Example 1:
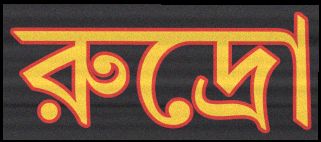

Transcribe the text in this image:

রুদ্রো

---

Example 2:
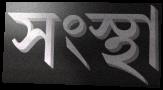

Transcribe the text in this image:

সংস্থা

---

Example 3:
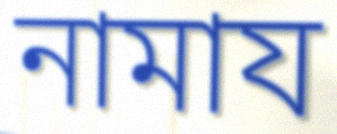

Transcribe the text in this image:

নামায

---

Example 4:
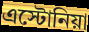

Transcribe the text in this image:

এস্টোনিয়া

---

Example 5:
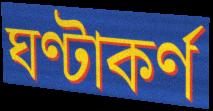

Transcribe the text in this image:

ঘণ্টাকর্ণ